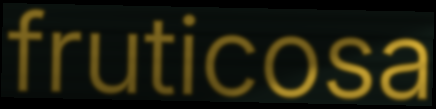
fruticosa